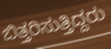
ಬಿತ್ತರಿಸುತ್ತಿದ್ದರು